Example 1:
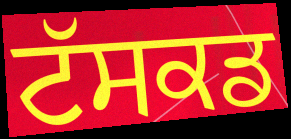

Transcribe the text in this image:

ਟੱਸਕਡ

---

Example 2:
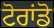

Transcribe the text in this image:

ਟੋਰਾਂਡੋ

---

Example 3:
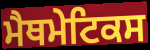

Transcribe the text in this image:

ਮੈਥਮੇਟਿਕਸ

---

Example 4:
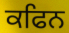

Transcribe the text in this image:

ਕਫਿਨ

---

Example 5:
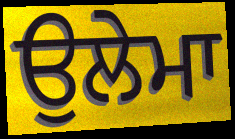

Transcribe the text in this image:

ਉਲੇਮਾ